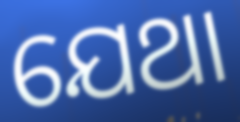
ଯେଥା